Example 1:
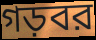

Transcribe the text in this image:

গড়বর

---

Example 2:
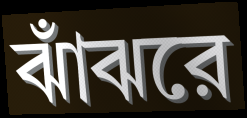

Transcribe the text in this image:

ঝাঁঝরে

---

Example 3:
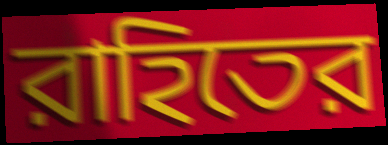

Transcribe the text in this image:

রাহিতের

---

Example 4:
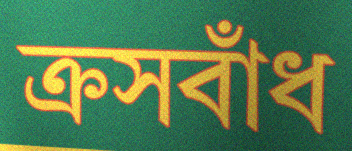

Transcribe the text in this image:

ক্রসবাঁধ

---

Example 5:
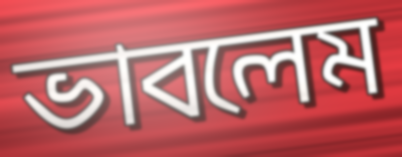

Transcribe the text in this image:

ভাবলেম